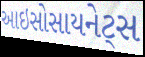
આઇસોસાયનેટ્સ